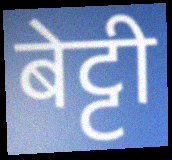
बेट्टी